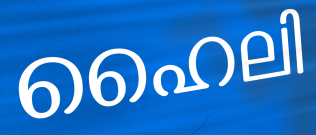
ഹൈലി